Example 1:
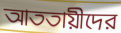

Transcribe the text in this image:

আততায়ীদের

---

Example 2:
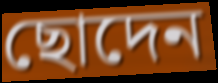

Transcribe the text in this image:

ছোদেন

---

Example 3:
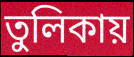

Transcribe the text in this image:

তুলিকায়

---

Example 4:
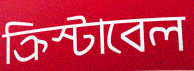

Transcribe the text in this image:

ক্রিস্টাবেল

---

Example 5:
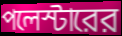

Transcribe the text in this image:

পলেস্টারের